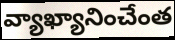
వ్యాఖ్యానించేంత